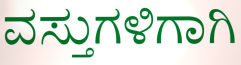
ವಸ್ತುಗಳಿಗಾಗಿ